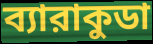
ব্যারাকুডা